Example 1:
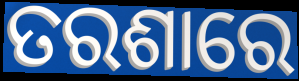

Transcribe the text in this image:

ତରଶାରେ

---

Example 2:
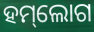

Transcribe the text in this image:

ହମ୍‌ଲୋଗ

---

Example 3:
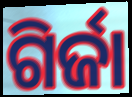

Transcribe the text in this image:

ଗିର୍ଜା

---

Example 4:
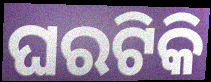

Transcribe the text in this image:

ଘରଟିକି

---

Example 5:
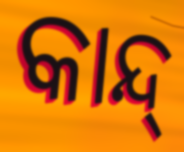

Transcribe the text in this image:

କାନ୍ଦ୍